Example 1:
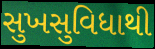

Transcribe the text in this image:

સુખસુવિધાથી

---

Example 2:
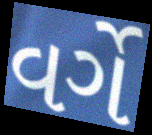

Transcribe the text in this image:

વર્ગે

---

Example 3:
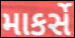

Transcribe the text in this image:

માકર્સે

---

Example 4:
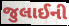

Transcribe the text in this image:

જુલાઈની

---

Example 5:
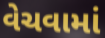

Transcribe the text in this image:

વેચવામાં